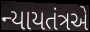
ન્યાયતંત્રએ